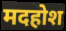
मदहोश